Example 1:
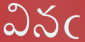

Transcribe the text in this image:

వినఁ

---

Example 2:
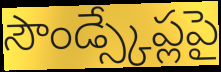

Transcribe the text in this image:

సౌండ్స్కేప్లపై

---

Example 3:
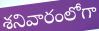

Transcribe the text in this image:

శనివారంలోగా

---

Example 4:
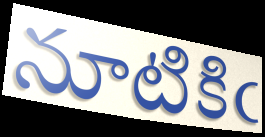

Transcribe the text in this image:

నూటికిఁ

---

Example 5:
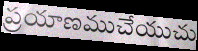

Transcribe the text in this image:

ప్రయాణముచేయుచు